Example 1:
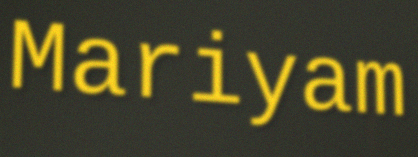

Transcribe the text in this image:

Mariyam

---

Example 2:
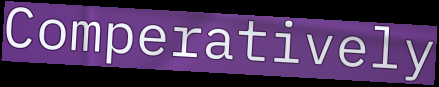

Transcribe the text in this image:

Comperatively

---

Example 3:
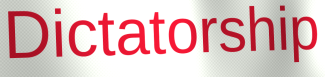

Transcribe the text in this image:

Dictatorship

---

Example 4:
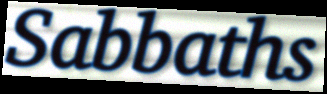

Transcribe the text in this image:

Sabbaths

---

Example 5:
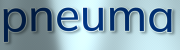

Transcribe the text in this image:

pneuma